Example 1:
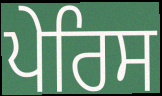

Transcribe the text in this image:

ਪੇਰਿਸ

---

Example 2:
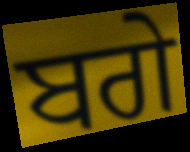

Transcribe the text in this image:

ਬਗੇ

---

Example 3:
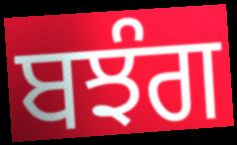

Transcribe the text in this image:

ਬਝੰਗ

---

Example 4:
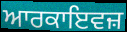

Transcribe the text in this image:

ਆਰਕਾਇਵਜ਼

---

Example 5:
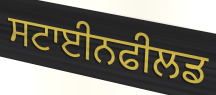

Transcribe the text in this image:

ਸਟਾਈਨਫੀਲਡ